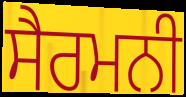
ਸੈਰਮਨੀ